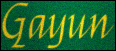
Gayun